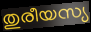
തുരീയസ്യ